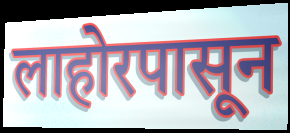
लाहोरपासून